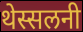
थेस्सलनी